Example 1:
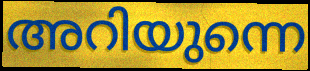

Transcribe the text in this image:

അറിയുന്നെ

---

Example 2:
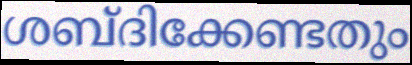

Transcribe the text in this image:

ശബ്ദിക്കേണ്ടതും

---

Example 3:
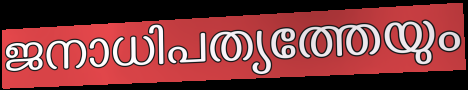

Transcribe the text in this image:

ജനാധിപത്യത്തേയും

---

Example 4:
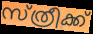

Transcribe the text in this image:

സ്‌ത്രീക്ക്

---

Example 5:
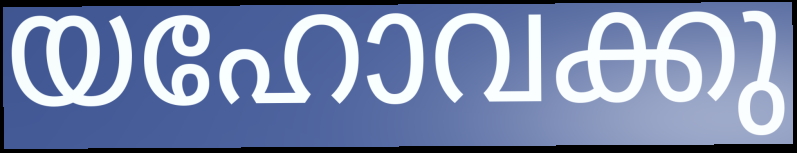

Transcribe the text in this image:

യഹോവക്കു